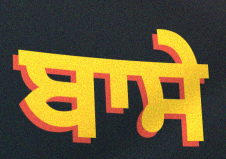
ਬਾਸੇ